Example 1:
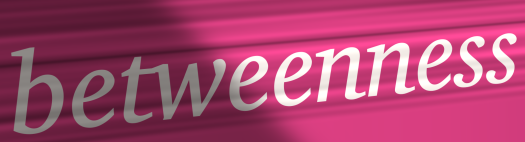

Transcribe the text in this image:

betweenness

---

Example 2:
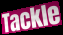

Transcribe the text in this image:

Tackle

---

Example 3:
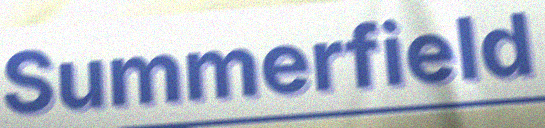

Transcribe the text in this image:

Summerfield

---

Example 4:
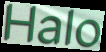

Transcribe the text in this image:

Halo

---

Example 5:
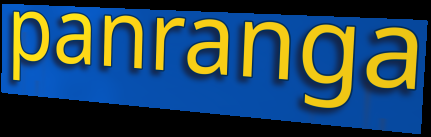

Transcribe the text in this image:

panranga